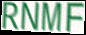
RNMF